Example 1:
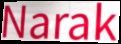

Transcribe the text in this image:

Narak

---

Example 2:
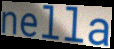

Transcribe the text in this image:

nella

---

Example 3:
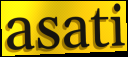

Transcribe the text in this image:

asati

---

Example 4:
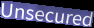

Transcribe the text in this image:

Unsecured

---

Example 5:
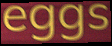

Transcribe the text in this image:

eggs